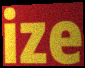
ize